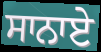
ਸਾਨਾਏ